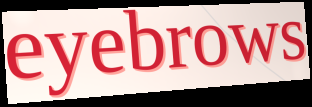
eyebrows